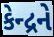
કેન્દ્રને